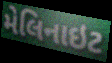
મેલિનાઇટ